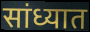
सांध्यात